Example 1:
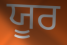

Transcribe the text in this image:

ਯੂਰ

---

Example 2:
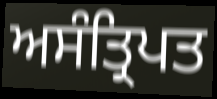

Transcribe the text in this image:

ਅਸੰਤ੍ਰਿਪਤ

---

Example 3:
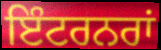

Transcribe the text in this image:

ਇੰਟਰਨਰਾਂ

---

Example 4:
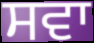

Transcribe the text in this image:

ਸਵਾ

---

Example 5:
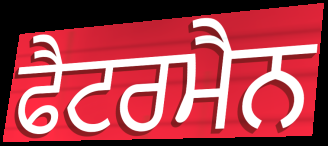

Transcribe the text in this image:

ਫੈਟਰਮੈਨ